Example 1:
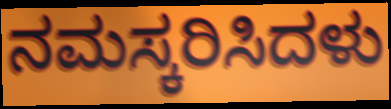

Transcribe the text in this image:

ನಮಸ್ಕರಿಸಿದಳು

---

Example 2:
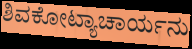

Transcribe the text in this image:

ಶಿವಕೋಟ್ಯಾಚಾರ್ಯನು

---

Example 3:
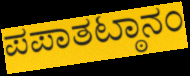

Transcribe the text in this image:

ಪಪಾತಟ್ಠಾನಂ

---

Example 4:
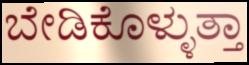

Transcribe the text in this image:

ಬೇಡಿಕೊಳ್ಳುತ್ತಾ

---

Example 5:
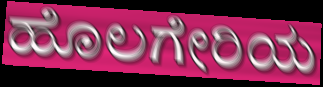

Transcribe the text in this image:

ಹೊಲಗೇರಿಯ